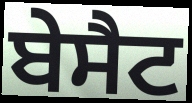
ਬੇਸੈਟ